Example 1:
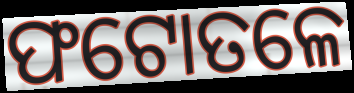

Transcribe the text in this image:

ଫଟୋତଳେ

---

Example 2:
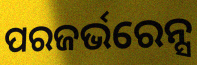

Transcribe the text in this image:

ପରଜର୍ଭରେନ୍ସ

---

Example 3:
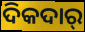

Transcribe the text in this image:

ଦିକଦାର୍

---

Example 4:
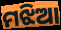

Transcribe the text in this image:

ମଝିଆ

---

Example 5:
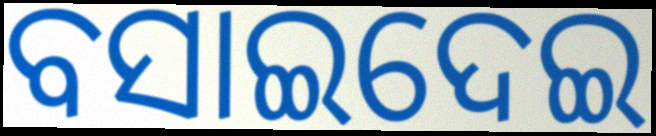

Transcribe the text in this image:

ବସାଇଦେଇ